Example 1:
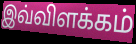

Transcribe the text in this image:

இவ்விளக்கம்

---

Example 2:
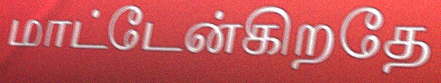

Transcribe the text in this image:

மாட்டேன்கிறதே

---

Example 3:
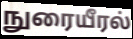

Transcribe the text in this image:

நுரையீரல்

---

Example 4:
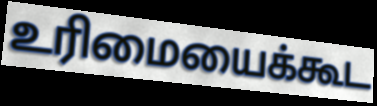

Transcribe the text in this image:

உரிமையைக்கூட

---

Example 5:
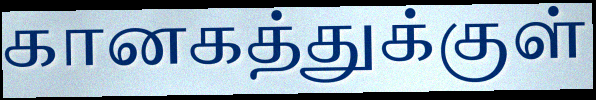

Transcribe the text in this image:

கானகத்துக்குள்